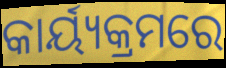
କାର୍ୟ୍ୟକ୍ରମରେ